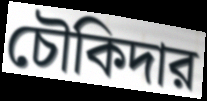
চৌকিদার